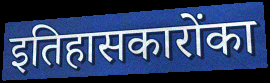
इतिहासकारोंका